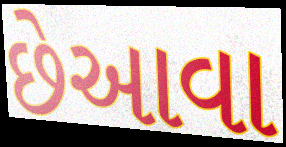
છેઆવા